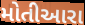
મોતીઆરા